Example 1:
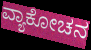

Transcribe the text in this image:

ವ್ಯಾಕೋಚನ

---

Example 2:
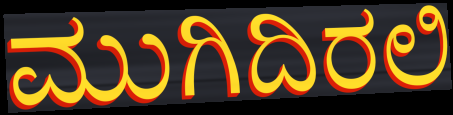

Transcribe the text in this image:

ಮುಗಿದಿರಲಿ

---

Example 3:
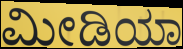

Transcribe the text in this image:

ಮೀಡಿಯಾ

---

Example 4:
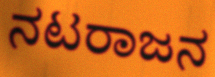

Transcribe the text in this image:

ನಟರಾಜನ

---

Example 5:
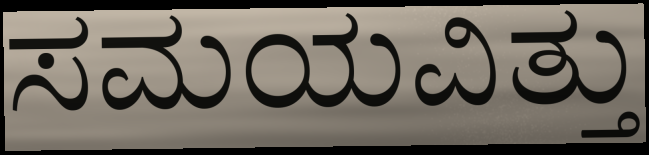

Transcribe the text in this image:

ಸಮಯವಿತ್ತು